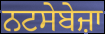
ਨਟਸੇਬੇਜ਼ਾ